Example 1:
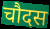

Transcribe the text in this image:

चौदस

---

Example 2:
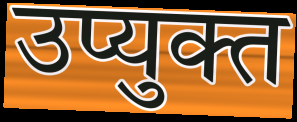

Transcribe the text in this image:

उप्युक्त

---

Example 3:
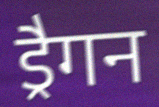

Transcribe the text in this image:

ड्रैगन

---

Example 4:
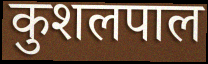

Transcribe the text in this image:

कुशलपाल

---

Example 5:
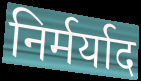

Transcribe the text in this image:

निर्मर्याद